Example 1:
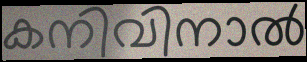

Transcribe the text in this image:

കനിവിനാൽ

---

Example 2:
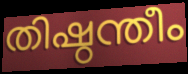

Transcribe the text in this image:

തിഷ്ഠന്തീം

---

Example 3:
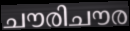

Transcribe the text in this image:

ചൗരിചൗര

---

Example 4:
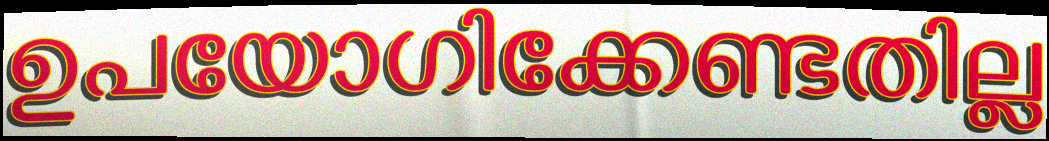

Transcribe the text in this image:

ഉപയോഗിക്കേണ്ടതില്ല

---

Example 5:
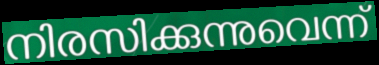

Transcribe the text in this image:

നിരസിക്കുന്നുവെന്ന്